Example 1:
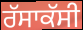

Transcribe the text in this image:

ਰੱਸਾਕੱਸੀ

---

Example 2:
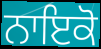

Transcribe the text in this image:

ਨਾਇਕੋ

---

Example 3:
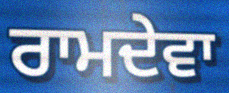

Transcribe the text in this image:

ਰਾਮਦੇਵਾ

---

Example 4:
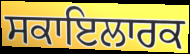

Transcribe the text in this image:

ਸਕਾਇਲਾਰਕ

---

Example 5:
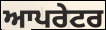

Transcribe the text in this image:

ਆਪਰੇਟਰ